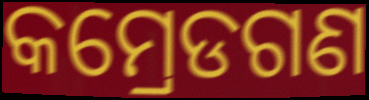
କମ୍ରେଡଗଣ